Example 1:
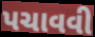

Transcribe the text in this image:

પચાવવી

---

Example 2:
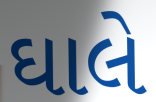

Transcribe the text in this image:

ઘાલે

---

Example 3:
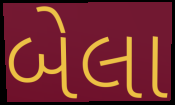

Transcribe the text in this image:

બેલા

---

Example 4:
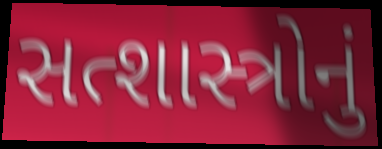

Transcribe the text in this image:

સત્શાસ્ત્રોનું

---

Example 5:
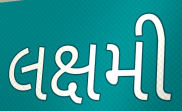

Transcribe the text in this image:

લક્ષમી